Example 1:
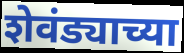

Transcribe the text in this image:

शेवंड्याच्या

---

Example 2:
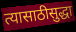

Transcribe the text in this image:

त्यासाठीसुद्धा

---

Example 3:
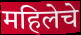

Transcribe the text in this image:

महिलेचे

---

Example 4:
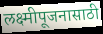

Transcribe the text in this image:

लक्ष्मीपूजनासाठी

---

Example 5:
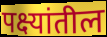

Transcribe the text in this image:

पक्ष्यांतील